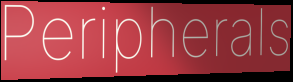
Peripherals